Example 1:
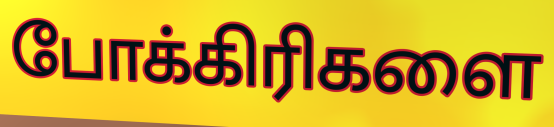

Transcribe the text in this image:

போக்கிரிகளை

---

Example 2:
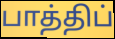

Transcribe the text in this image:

பாத்திப்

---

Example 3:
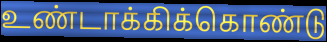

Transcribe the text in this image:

உண்டாக்கிக்கொண்டு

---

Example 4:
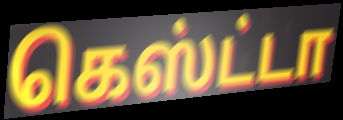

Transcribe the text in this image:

கெஸ்ட்டா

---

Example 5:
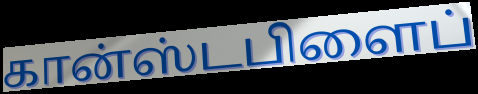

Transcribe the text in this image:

கான்ஸ்டபிளைப்